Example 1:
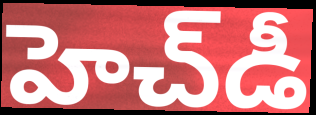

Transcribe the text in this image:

హెచ్‌డీ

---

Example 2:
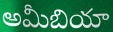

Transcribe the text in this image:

అమీబియా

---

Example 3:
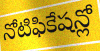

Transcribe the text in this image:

నోటిఫికేషన్లో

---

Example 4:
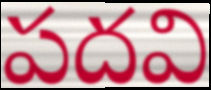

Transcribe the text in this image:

పదవి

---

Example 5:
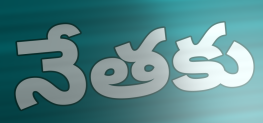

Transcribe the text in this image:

నేతకు